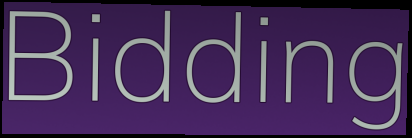
Bidding